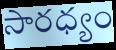
సారధ్యం